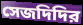
সেজদিদির